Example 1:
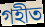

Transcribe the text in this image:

গহীত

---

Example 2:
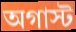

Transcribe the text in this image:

অগাস্ট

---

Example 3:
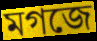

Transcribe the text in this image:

মগজে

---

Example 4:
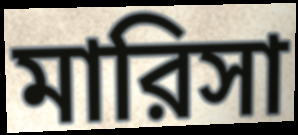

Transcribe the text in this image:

মারিসা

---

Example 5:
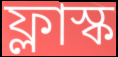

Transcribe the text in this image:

ফ্লাস্ক